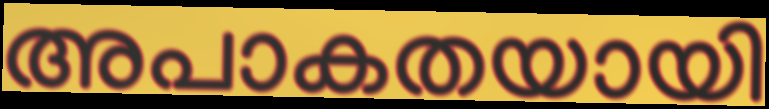
അപാകതയായി